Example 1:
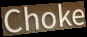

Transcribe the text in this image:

Choke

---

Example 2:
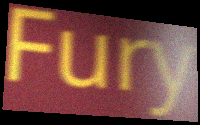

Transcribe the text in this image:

Fury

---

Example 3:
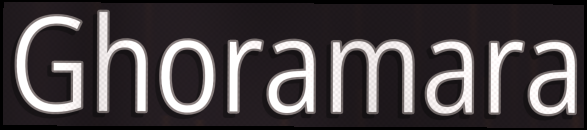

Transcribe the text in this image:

Ghoramara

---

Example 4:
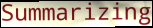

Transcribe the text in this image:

Summarizing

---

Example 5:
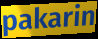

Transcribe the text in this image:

pakarin